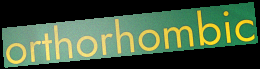
orthorhombic